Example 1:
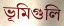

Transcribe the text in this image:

ভূমিগুলি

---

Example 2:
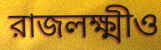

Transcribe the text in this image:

রাজলক্ষ্মীও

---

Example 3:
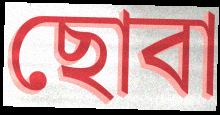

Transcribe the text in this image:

ছোবা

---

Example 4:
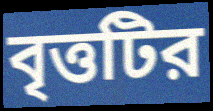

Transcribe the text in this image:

বৃত্তটির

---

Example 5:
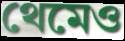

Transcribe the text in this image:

থেমেও